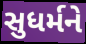
સુધર્મને